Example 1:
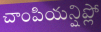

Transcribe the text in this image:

చాంపియన్షిప్లో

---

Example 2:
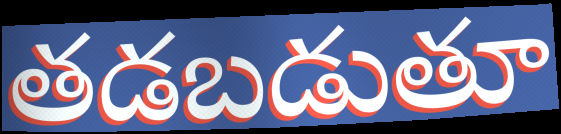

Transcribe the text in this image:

తడబడుతూ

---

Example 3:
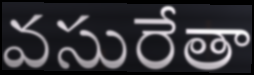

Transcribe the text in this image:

వసురేతా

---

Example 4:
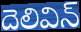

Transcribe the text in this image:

దెలివిన్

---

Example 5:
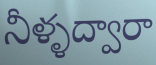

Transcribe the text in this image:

నీళ్ళద్వారా